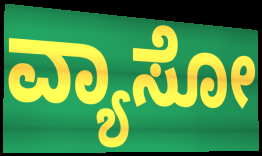
ವ್ಯಾಸೋ